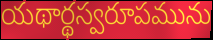
యథార్థస్వరూపమును